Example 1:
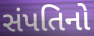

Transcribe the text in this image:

સંપતિનો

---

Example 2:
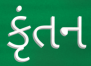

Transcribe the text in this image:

કૃંતન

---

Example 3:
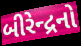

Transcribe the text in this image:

બીરેન્દ્રનો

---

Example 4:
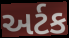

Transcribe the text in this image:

અર્ટક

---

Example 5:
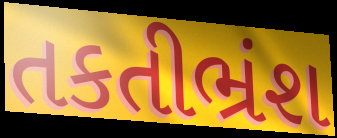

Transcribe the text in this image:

તકતીભ્રંશ